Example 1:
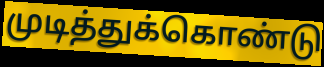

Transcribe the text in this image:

முடித்துக்கொண்டு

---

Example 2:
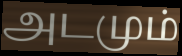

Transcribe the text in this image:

அடமும்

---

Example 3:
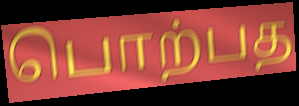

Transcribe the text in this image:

பொற்பத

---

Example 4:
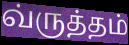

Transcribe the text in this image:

வ்ருத்தம்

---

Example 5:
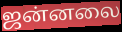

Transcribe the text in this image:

ஜன்னலை